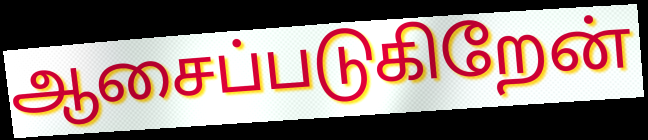
ஆசைப்படுகிறேன்